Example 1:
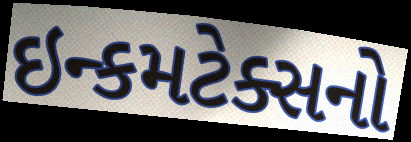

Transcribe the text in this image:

ઇન્કમટેક્સનો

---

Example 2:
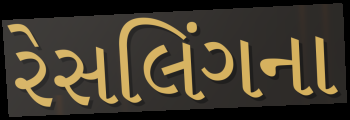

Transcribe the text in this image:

રેસલિંગના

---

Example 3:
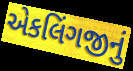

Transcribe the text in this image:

એકલિંગજીનું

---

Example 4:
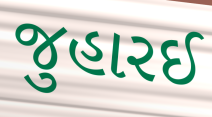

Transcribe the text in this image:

જુહારઈ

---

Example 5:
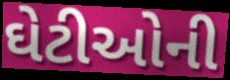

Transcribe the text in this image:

ઘેટીઓની